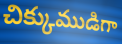
చిక్కుముడిగా